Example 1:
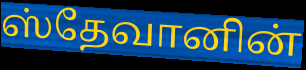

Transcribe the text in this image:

ஸ்தேவானின்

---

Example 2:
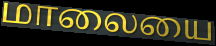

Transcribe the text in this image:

மாலையை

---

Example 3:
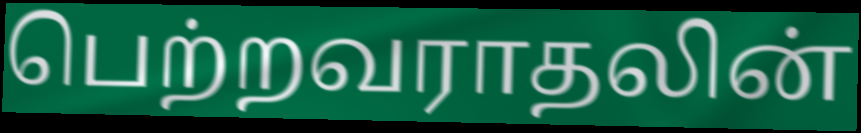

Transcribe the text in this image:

பெற்றவராதலின்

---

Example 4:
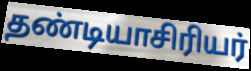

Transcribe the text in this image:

தண்டியாசிரியர்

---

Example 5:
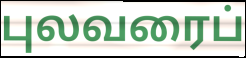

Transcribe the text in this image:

புலவரைப்